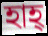
হাহ্